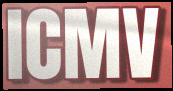
ICMV